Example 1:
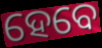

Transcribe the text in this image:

ହେବେ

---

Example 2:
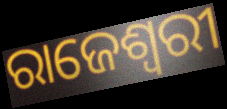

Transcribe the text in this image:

ରାଜେଶ୍ଵରୀ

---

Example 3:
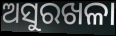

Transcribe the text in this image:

ଅସୁରଖଳା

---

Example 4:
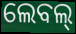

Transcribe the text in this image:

ଲେବଲ୍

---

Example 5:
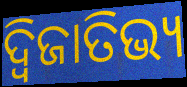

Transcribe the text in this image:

ଦ୍ବିଜାତିଭ୍ୟ